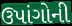
ઉપાંગોની